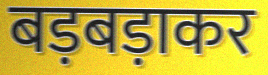
बड़बड़ाकर